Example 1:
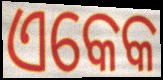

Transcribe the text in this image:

ଏକେକ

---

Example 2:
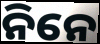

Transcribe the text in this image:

ନିନେ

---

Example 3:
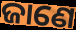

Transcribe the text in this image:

ଜାଣେ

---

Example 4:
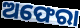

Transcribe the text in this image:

ଅଫେରା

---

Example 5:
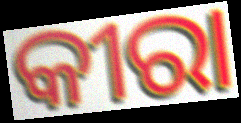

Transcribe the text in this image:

କୀରା